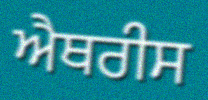
ਐਥਰੀਸ